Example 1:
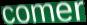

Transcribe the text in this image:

comer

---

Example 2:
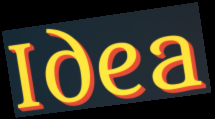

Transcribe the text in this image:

Idea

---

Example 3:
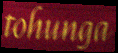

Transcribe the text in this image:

tohunga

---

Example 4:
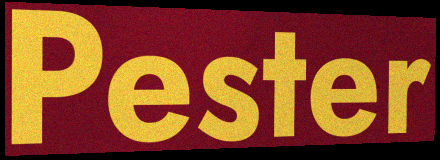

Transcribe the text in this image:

Pester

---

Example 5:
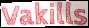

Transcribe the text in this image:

Vakills